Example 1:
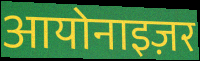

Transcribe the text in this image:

आयोनाइज़र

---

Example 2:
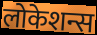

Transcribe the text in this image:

लोकेशन्स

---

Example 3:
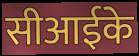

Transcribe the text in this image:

सीआईके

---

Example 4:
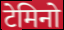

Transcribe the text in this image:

टेमिनो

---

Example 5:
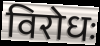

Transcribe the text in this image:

विरोधः